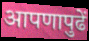
आपणापुढें